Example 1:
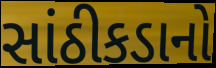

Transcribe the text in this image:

સાંઠીકડાનો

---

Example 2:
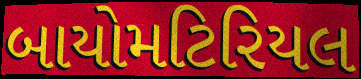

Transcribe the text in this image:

બાયોમટિરિયલ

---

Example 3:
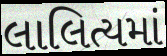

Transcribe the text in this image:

લાલિત્યમાં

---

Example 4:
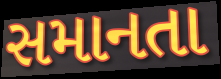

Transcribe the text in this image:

સમાનતા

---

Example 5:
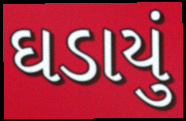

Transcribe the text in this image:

ઘડાયું